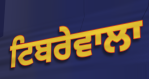
ਟਿਬਰੇਵਾਲਾ